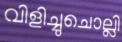
വിളിച്ചുചൊല്ലി